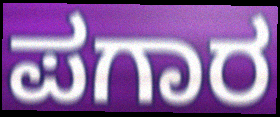
ಪಗಾರ